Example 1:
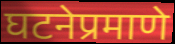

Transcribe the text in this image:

घटनेप्रमाणे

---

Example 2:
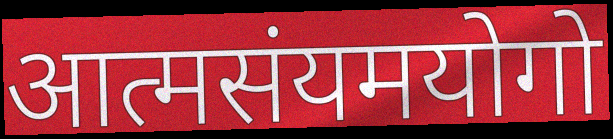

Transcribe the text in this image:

आत्मसंयमयोगो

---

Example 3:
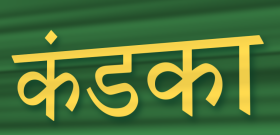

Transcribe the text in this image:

कंडका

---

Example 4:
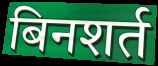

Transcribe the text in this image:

बिनशर्त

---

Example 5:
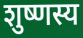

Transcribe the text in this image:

शुष्णस्य